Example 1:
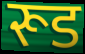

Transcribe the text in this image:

रूड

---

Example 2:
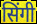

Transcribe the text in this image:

सिंगी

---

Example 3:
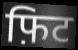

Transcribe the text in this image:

फ़िट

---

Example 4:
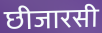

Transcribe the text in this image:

छीजारसी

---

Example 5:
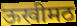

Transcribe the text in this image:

ऊखीमठ